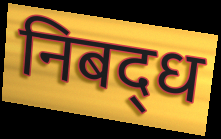
निबद्ध